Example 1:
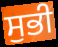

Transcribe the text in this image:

ਸੁਭੀ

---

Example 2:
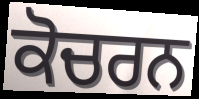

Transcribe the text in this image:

ਕੋਚਰਨ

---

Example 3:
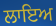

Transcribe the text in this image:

ਲਾਇਅ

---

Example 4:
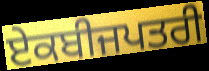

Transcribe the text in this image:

ਏਕਬੀਜਪਤਰੀ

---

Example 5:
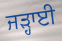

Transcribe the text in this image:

ਜੜ੍ਹਾਈ